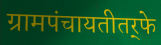
ग्रामपंचायतीतर्फे